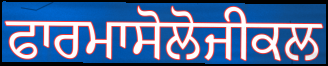
ਫਾਰਮਾਸੋਲੋਜੀਕਲ